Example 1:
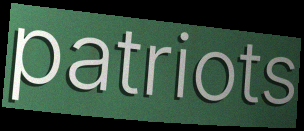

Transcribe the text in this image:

patriots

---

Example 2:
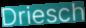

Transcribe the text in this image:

Driesch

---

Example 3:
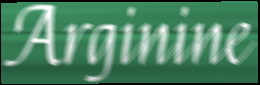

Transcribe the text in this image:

Arginine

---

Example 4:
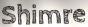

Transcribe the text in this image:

Shimre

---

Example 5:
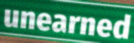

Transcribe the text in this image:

unearned